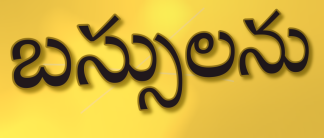
బస్సులను